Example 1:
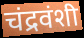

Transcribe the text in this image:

चंद्रवंशी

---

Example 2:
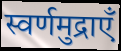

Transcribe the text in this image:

स्वर्णमुद्राएँ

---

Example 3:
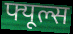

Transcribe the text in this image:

फ्यूल्स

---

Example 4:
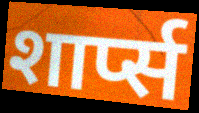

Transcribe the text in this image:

शार्प्स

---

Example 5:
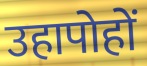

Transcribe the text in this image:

उहापोहों